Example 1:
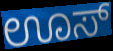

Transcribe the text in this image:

ಊಸ್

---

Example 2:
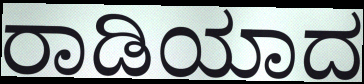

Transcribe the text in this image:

ರಾಡಿಯಾದ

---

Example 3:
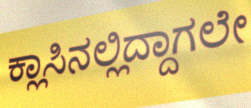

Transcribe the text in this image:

ಕ್ಲಾಸಿನಲ್ಲಿದ್ದಾಗಲೇ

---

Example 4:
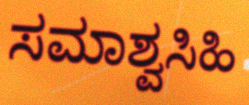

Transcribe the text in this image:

ಸಮಾಶ್ವಸಿಹಿ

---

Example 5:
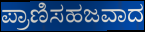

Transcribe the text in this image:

ಪ್ರಾಣಿಸಹಜವಾದ